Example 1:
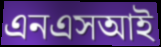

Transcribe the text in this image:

এনএসআই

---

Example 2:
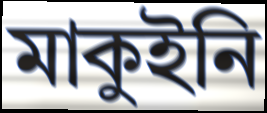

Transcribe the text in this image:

মাকুইনি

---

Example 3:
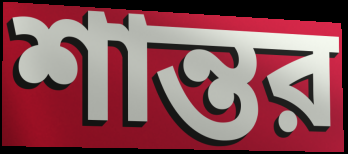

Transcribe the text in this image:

শান্তর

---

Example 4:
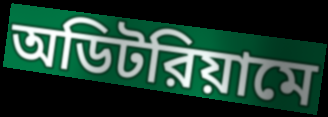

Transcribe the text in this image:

অডিটরিয়ামে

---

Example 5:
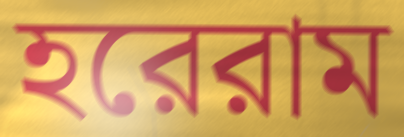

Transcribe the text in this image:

হরেরাম